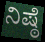
ನಿಷ್ಠೆ